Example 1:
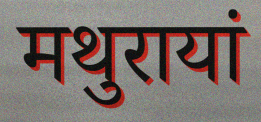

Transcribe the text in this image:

मथुरायां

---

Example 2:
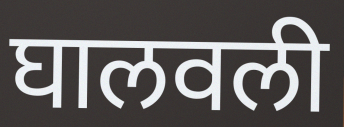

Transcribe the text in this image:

घालवली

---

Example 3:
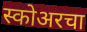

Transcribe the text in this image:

स्कोअरचा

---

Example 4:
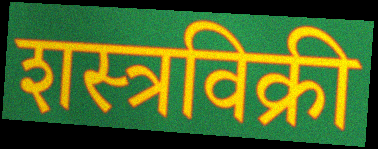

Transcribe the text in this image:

शस्त्रविक्री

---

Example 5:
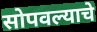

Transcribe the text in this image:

सोपवल्याचे